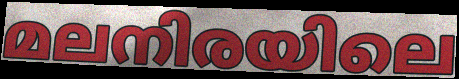
മലനിരയിലെ